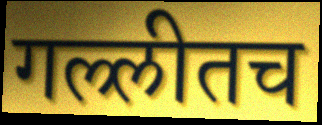
गल्लीतच